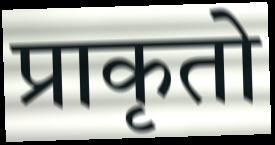
प्राकृतो